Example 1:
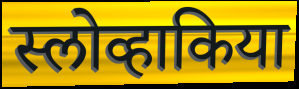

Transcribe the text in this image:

स्लोव्हाकिया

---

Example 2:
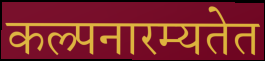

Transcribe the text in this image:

कल्पनारम्यतेत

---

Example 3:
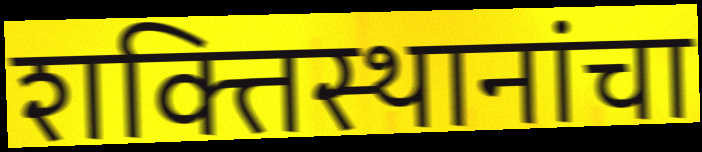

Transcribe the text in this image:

शक्तिस्थानांचा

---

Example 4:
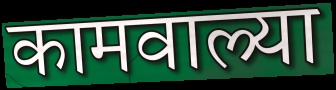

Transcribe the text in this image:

कामवाल्या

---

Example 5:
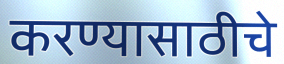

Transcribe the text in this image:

करण्यासाठीचे